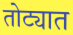
तोट्यात